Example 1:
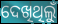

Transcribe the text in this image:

ଦେଖିଥିଲୁଁ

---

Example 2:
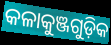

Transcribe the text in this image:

କଳାକୁଞ୍ଜଗୁଡ଼ିକ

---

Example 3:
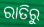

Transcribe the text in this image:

ରାତିରୁ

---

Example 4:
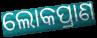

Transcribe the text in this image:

ଲୋକପ୍ରାଣ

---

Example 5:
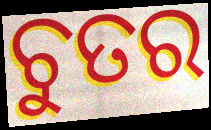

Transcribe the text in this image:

ଚୁତର